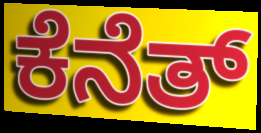
ಕೆನೆತ್